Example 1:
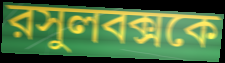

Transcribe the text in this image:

রসুলবক্সকে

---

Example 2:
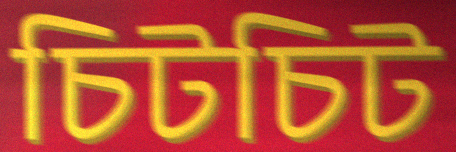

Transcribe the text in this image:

চিটচিট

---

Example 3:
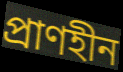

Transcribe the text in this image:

প্রাণহীন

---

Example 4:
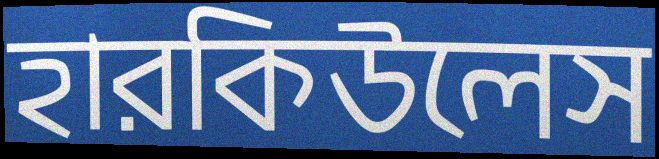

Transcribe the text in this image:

হারকিউলেস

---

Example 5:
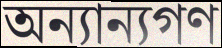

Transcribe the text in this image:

অন্যান্যগণ